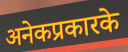
अनेकप्रकारके